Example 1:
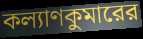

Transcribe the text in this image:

কল্যাণকুমারের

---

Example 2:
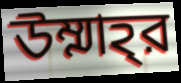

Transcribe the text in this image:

উম্মাহ্‌র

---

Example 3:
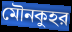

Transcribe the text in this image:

মৌনকুহর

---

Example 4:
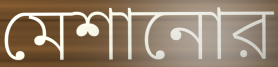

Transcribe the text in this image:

মেশানোর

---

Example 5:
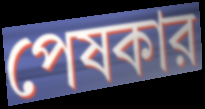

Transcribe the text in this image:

পেষকার